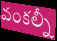
వంకల్నీ